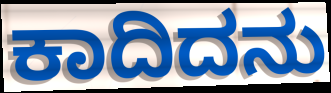
ಕಾದಿದನು